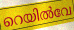
റെയിൽവേ